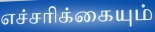
எச்சரிக்கையும்